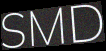
SMD